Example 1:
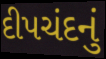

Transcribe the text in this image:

દીપચંદનું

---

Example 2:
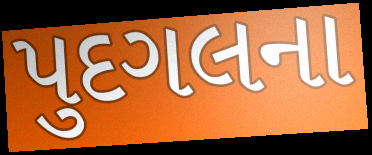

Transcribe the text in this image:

પુદગલના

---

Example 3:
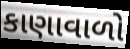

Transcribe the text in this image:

કાણાવાળો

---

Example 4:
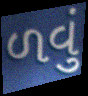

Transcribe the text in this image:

ળવું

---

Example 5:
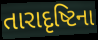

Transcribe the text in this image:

તારાદૃષ્ટિના